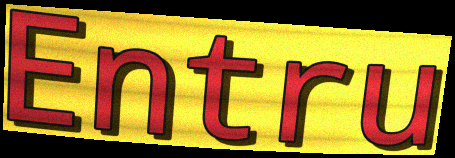
Entru